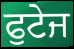
ਫੁਟੇਜ